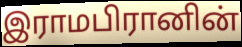
இராமபிரானின்